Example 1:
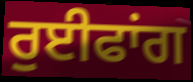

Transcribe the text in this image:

ਰੁਈਫਾਂਗ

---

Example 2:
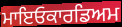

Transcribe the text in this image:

ਮਾਇਓਕਾਰਡਿਅਮ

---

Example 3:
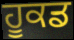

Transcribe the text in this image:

ਹੂਕਡ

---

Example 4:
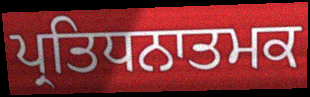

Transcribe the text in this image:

ਪ੍ਰਤਿਧਨਾਤਮਕ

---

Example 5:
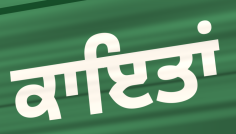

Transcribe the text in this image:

ਕਾਇਤਾਂ